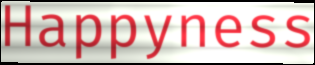
Happyness